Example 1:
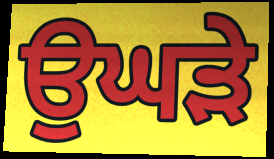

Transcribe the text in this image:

ਉਘੜੇ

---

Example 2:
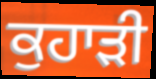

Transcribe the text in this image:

ਕੁਹਾੜੀ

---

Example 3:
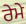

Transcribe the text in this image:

ਰੇਮੇ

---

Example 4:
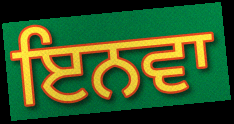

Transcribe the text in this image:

ਇਨਵਾ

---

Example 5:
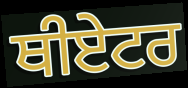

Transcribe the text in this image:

ਥੀਏਟਰ